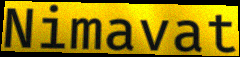
Nimavat